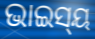
ଭାଇସ୍‌ୟ